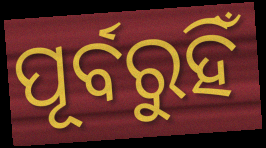
ପୂର୍ବରୁହିଁ